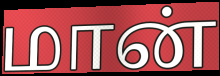
மான்